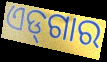
ଏଡ୍‌ଗାର